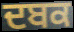
ਦਬਕ